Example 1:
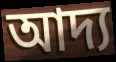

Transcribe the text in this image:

আদ্য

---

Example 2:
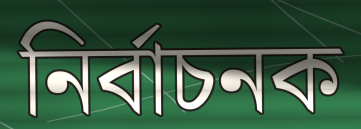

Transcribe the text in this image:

নিৰ্বাচনক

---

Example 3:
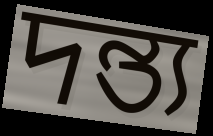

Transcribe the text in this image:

দন্ত্য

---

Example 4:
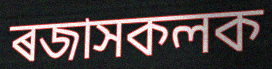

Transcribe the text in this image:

ৰজাসকলক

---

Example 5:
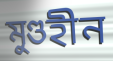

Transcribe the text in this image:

মুণ্ডহীন